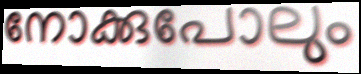
നോക്കുപോലും